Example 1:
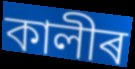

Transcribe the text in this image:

কালীৰ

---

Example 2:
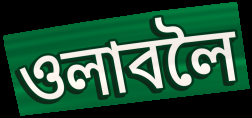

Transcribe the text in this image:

ওলাবলৈ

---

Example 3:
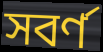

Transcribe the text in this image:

সবৰ্ণ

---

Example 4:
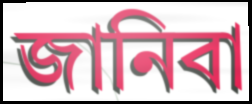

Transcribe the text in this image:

জানিবা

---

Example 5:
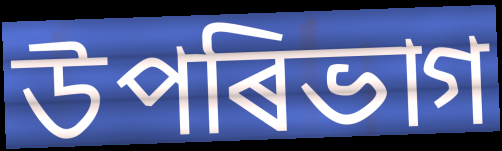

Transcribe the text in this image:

উপৰিভাগ